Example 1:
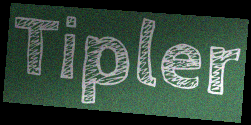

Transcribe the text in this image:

Tipler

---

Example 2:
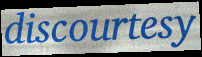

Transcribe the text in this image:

discourtesy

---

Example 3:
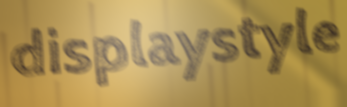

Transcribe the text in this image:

displaystyle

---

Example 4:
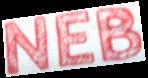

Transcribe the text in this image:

NEB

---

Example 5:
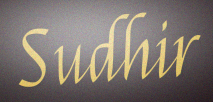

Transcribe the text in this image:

Sudhir